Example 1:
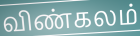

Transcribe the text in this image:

விண்கலம்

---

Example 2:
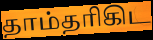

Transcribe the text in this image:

தாம்தரிகிட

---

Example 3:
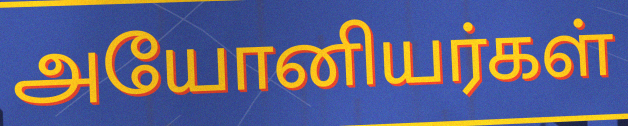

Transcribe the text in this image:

அயோனியர்கள்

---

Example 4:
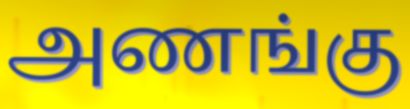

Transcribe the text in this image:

அணங்கு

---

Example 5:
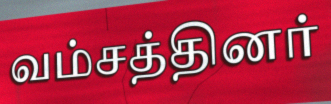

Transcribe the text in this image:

வம்சத்தினர்